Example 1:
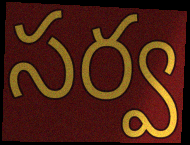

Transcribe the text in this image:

సర్వ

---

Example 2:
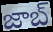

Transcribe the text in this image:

జాబ్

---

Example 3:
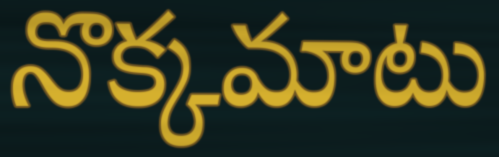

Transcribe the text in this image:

నొక్కమాటు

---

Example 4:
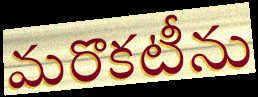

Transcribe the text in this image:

మరొకటీను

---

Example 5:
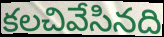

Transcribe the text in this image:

కలచివేసినది